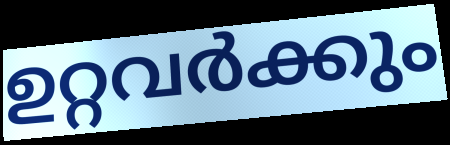
ഉറ്റവർക്കും